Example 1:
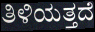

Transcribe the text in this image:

ತಿಳಿಯತ್ತದೆ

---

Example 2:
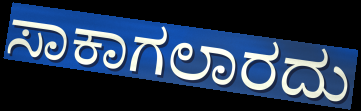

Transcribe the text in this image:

ಸಾಕಾಗಲಾರದು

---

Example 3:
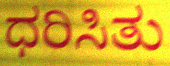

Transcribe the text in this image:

ಧರಿಸಿತು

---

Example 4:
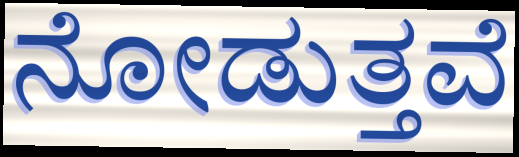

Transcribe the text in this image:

ನೋಡುತ್ತವೆ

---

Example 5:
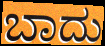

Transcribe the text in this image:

ಬಾದು